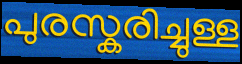
പുരസ്കരിച്ചുള്ള